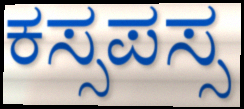
ಕಸ್ಸಪಸ್ಸ